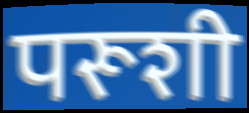
परूशी